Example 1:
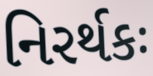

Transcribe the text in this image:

નિરર્થકઃ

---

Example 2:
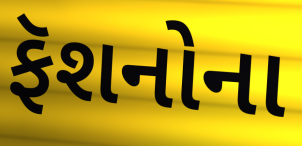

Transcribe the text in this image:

ફૅશનોના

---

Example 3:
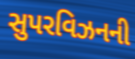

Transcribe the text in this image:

સુપરવિઝનની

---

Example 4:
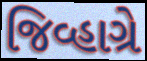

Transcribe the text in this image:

જિવ્હાગ્રે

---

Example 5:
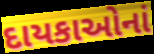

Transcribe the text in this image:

દાયકાઓનાં